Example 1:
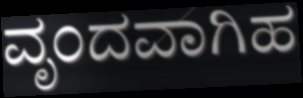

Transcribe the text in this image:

ವೃಂದವಾಗಿಹ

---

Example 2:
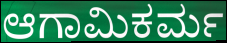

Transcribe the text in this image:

ಆಗಾಮಿಕರ್ಮ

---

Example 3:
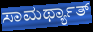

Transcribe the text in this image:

ಸಾಮರ್ಥ್ಯಾತ್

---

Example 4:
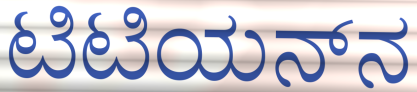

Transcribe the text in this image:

ಟಿಟಿಯನ್‌ನ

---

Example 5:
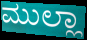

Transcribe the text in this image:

ಮುಲ್ಲಾ